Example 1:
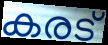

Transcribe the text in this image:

കരട്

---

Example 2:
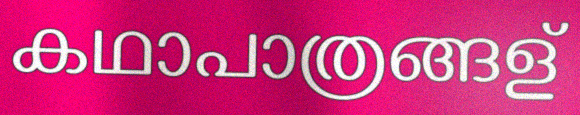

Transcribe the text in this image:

കഥാപാത്രങ്ങള്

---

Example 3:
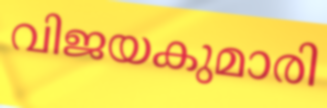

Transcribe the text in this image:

വിജയകുമാരി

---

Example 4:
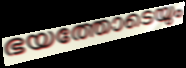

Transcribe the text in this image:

ഭയത്തോടെയും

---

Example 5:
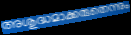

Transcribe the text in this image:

അശുദ്ധമാക്കരുതെന്നും